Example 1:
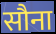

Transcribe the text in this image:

सौना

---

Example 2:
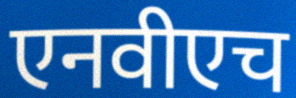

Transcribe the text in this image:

एनवीएच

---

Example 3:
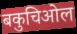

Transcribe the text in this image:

बकुचिओल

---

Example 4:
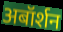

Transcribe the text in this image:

अबॉर्शन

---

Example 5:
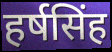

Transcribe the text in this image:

हर्षसिंह